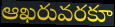
ఆఖరువరకూ